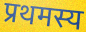
प्रथमस्य